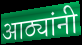
आठ्यांनी